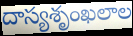
దాస్యశృంఖలాల